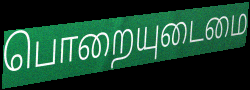
பொறையுடைமை